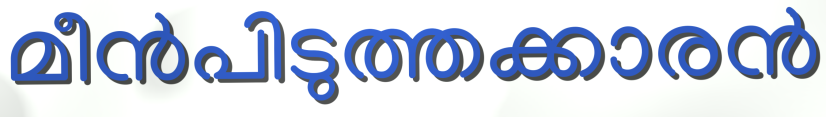
മീൻപിടുത്തക്കാരൻ